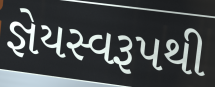
જ્ઞેયસ્વરૂપથી